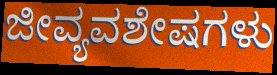
ಜೀವ್ಯವಶೇಷಗಳು